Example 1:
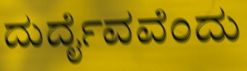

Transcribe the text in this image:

ದುರ್ದೈವವೆಂದು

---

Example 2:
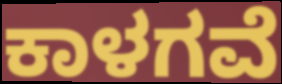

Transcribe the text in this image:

ಕಾಳಗವೆ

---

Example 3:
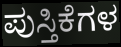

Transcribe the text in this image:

ಪುಸ್ತಿಕೆಗಳ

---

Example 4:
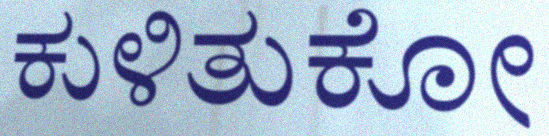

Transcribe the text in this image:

ಕುಳಿತುಕೋ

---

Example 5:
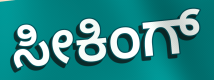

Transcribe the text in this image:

ಸೀಕಿಂಗ್